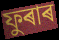
ফুৰাৰ